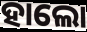
ହାଲୋ